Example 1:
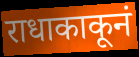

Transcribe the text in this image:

राधाकाकूनं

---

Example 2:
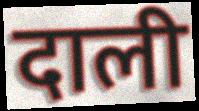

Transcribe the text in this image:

दाली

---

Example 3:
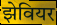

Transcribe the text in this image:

झेवियर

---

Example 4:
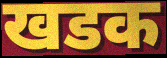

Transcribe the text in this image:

खडक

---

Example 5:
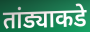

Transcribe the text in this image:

तांड्याकडे